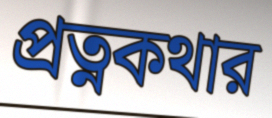
প্রত্নকথার